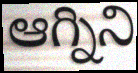
ఆగ్నిని